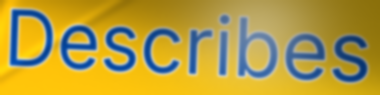
Describes